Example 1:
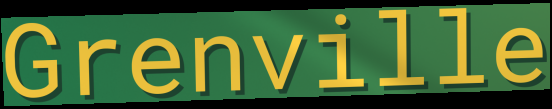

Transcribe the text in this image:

Grenville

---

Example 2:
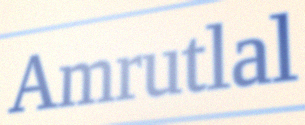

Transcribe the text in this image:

Amrutlal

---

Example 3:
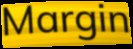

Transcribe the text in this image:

Margin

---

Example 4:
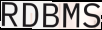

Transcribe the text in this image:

RDBMS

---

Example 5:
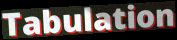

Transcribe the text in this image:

Tabulation